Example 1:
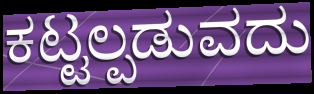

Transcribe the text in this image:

ಕಟ್ಟಲ್ಪಡುವದು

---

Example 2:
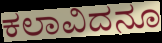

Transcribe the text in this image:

ಕಲಾವಿದನೂ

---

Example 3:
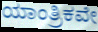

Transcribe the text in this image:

ಯಾಂತ್ರಿಕವೇ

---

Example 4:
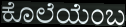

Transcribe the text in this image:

ಕೊಲೆಯೆಂಬ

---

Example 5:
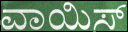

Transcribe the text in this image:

ವಾಯಿಸ್